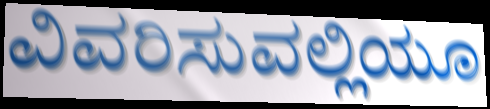
ವಿವರಿಸುವಲ್ಲಿಯೂ